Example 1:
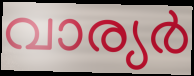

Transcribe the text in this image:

വാര്യർ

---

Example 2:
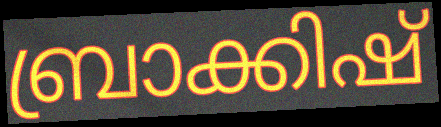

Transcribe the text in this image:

ബ്രാക്കിഷ്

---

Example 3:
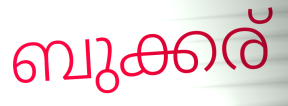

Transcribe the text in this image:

ബുക്കര്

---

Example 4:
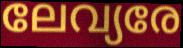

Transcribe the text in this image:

ലേവ്യരേ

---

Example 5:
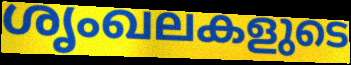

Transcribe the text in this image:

ശൃംഖലകളുടെ